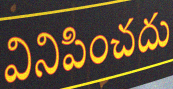
వినిపించదు